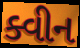
ક્વીન